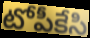
టోపీకేసి